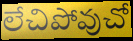
లేచిపోవుచో